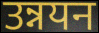
उन्नयन